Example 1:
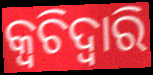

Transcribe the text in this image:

କ୍ଵଚିଦ୍ୱାରି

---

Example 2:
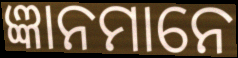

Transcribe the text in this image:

ଜ୍ଞାନମାନେ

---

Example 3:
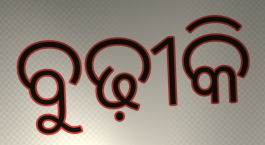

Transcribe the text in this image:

ବୁଢ଼ୀକି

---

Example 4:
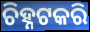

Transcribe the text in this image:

ଚିହ୍ନଟକରି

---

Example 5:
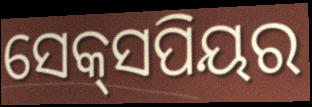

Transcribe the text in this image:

ସେକ୍‍ସପିୟର